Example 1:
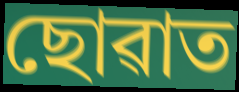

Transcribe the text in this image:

ছোৱাত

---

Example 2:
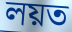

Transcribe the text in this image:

লয়ত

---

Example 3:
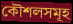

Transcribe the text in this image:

কৌশলসমূহ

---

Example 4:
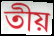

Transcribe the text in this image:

তীয়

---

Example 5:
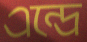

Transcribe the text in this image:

এন্দ্ৰে